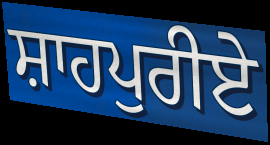
ਸ਼ਾਹਪੁਰੀਏ